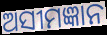
ଅସୀମଜ୍ଞାନ